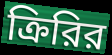
ক্রিরির